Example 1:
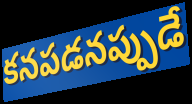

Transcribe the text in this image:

కనపడనప్పుడే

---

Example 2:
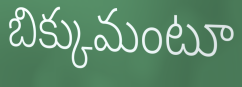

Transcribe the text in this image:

బిక్కుమంటూ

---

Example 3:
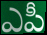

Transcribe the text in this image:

ఎపీ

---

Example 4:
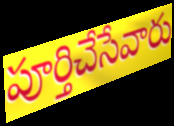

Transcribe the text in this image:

పూర్తిచేసేవారు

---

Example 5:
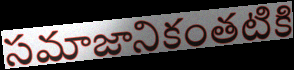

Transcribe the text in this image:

సమాజానికంతటికి